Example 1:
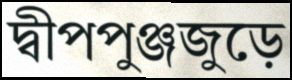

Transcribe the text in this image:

দ্বীপপুঞ্জজুড়ে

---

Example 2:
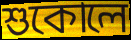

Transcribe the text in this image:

শুকোলে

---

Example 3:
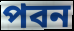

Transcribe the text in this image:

পবন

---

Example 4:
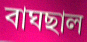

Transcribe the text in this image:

বাঘছাল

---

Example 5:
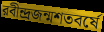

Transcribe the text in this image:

রবীন্দ্রজন্মশতবর্ষে